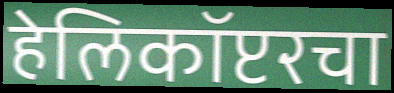
हेलिकॉप्टरचा